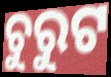
ଚୁରୁଟ